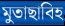
মুতাছাবিহ